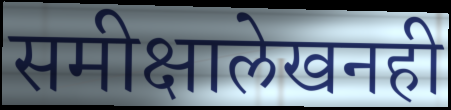
समीक्षालेखनही